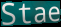
Stae